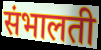
संभालती